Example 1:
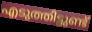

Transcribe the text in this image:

എടുത്തിട്ടുണ്ട്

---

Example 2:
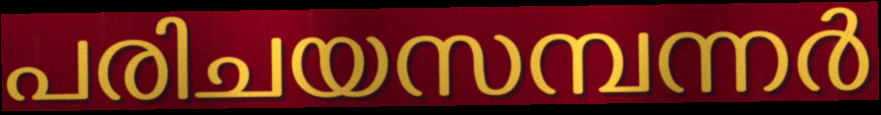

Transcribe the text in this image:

പരിചയസമ്പന്നർ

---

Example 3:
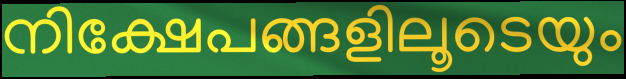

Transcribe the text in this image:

നിക്ഷേപങ്ങളിലൂടെയും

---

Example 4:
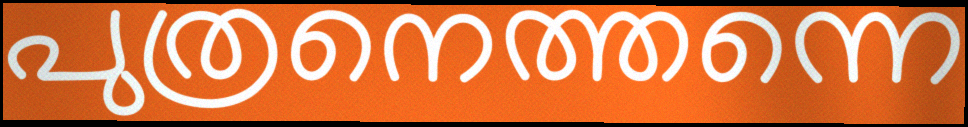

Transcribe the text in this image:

പുത്രനെത്തന്നെ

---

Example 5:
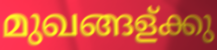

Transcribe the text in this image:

മുഖങ്ങള്ക്കു